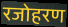
रजोहरण